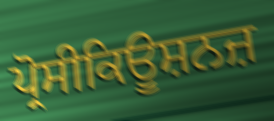
ਪ੍ਰੋਸੀਕਿਊਸ਼ਨਜ਼